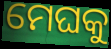
ମେଘକୁ